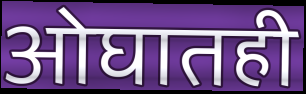
ओघातही